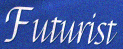
Futurist